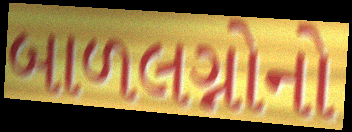
બાળલગ્નોનો